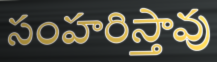
సంహరిస్తావు